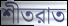
শীতরাত